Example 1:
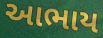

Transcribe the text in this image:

આભાય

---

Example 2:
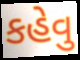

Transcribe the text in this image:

કહેવુ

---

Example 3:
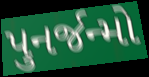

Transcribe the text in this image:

પુનર્જન્મો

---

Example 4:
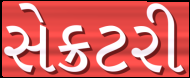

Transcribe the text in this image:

સેક્રટરી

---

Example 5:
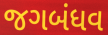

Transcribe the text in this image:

જગબંધવ